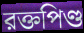
রক্তপিণ্ড